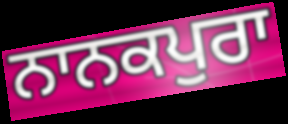
ਨਾਨਕਪੁਰਾ